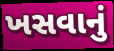
ખસવાનું